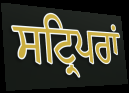
ਸਟ੍ਰਿਪਰਾਂ